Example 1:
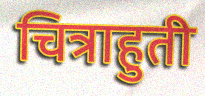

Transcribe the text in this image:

चित्राहुती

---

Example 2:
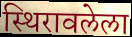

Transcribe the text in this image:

स्थिरावलेला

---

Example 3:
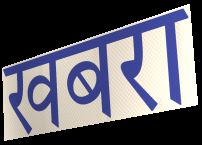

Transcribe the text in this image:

खबरा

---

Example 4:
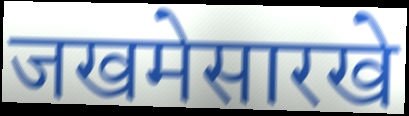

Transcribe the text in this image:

जखमेसारखे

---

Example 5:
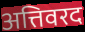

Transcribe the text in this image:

अत्तिवरद